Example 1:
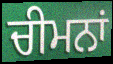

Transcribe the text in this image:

ਚੀਮਨਾਂ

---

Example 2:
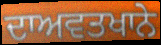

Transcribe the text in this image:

ਦਾਅਵਤਖਾਨੇ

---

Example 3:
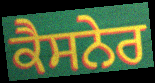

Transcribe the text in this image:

ਕੈਸਨੇਰ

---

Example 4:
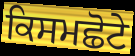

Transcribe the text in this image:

ਕਿਸਮਛੋਟੇ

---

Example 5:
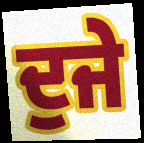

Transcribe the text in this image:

ਦੁਜੇ